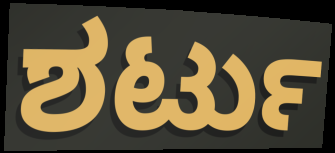
ಶರ್ಟು